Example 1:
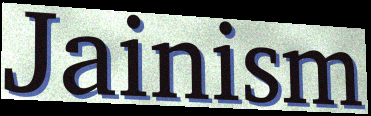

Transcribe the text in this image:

Jainism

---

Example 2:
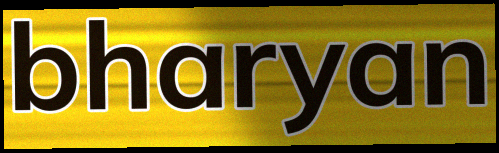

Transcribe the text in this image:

bharyan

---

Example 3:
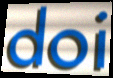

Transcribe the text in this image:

doi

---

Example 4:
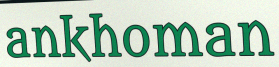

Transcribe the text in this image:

ankhoman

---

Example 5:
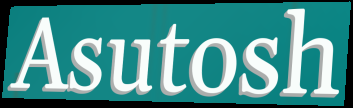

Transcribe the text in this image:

Asutosh